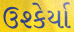
ઉશ્કેર્યા